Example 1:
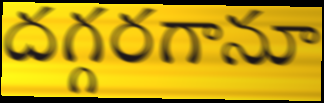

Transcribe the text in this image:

దగ్గరగానూ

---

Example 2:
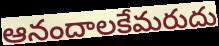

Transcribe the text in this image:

ఆనందాలకేమరుదు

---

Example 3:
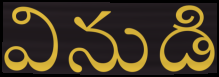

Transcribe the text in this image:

వినుడి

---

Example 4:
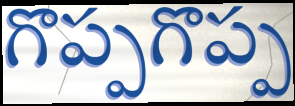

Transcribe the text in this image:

గొప్పగొప్ప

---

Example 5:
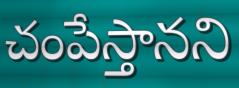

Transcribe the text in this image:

చంపేస్తానని